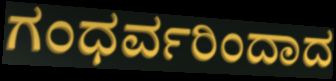
ಗಂಧರ್ವರಿಂದಾದ